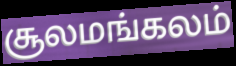
சூலமங்கலம்